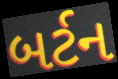
બર્ટન